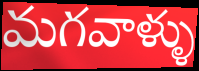
మగవాళ్ళు